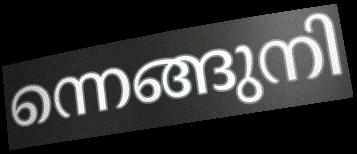
ന്നെങ്ങുനി